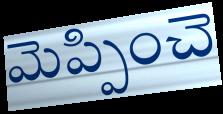
మెప్పించె